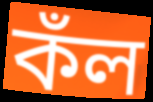
কঁল